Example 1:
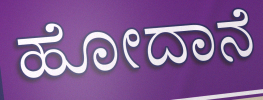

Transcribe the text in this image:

ಹೋದಾನೆ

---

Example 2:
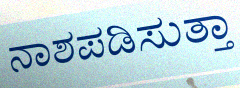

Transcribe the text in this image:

ನಾಶಪಡಿಸುತ್ತಾ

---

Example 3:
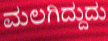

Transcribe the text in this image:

ಮಲಗಿದ್ದುದು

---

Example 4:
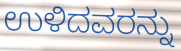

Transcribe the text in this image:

ಉಳಿದವರನ್ನು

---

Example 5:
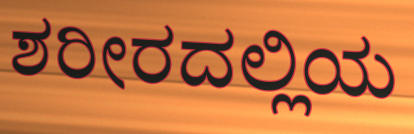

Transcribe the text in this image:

ಶರೀರದಲ್ಲಿಯ